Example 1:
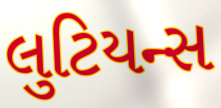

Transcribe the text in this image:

લુટિયન્સ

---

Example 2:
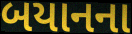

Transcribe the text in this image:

બયાનના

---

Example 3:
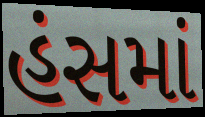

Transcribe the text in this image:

હંસમાં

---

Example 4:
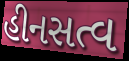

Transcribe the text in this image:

હીનસત્વ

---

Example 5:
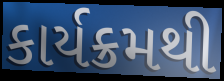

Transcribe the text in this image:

કાર્યક્રમથી